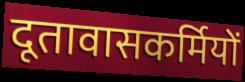
दूतावासकर्मियों